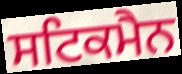
ਸਟਿਕਮੈਨ